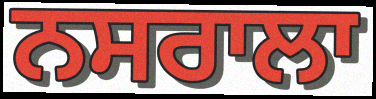
ਨਸਰਾਲਾ